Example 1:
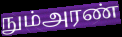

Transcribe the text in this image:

நும்அரண்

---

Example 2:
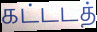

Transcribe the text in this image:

கட்டடத்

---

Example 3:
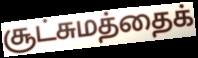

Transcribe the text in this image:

சூட்சுமத்தைக்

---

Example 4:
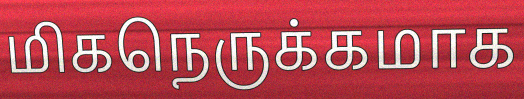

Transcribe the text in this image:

மிகநெருக்கமாக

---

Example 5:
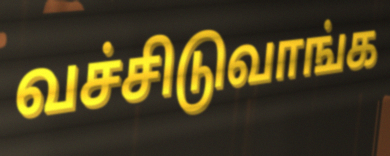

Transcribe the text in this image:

வச்சிடுவாங்க